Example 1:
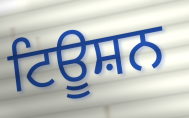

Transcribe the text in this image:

ਟਿਊਸ਼ਨ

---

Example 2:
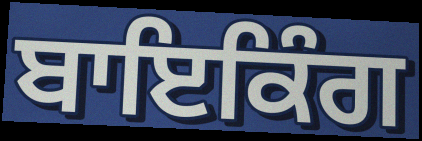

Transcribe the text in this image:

ਬਾਇਕਿੰਗ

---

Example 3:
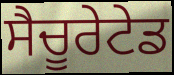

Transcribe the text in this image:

ਸੈਚੂਰੇਟੇਡ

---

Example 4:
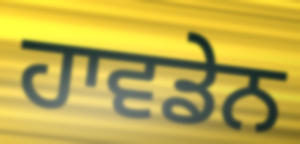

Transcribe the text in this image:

ਹਾਵਡੇਨ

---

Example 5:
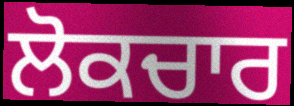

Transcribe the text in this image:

ਲੋਕਚਾਰ